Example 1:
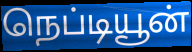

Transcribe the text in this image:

நெப்டியூன்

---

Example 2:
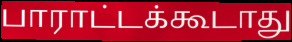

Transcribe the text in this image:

பாராட்டக்கூடாது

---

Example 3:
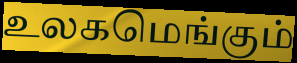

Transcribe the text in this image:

உலகமெங்கும்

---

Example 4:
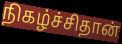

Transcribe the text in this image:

நிகழ்ச்சிதான்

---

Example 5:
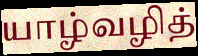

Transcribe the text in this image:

யாழ்வழித்